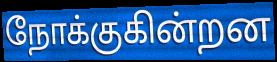
நோக்குகின்றன